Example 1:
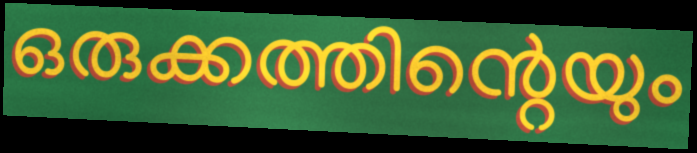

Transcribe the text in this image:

ഒരുക്കത്തിന്റെയും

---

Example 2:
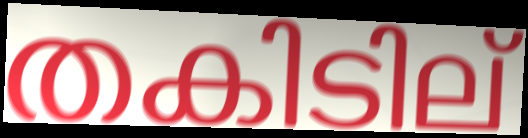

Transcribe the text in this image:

തകിടില്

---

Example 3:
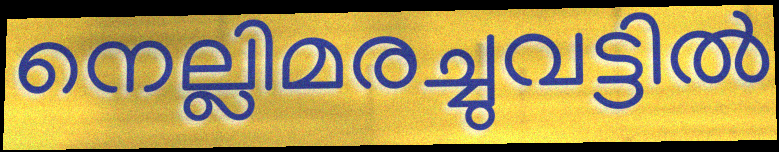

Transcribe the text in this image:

നെല്ലിമരച്ചുവട്ടിൽ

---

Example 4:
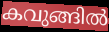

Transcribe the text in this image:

കവുങ്ങിൽ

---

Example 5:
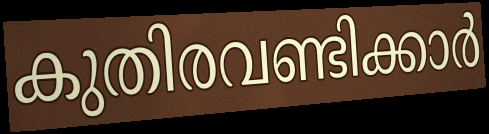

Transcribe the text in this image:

കുതിരവണ്ടിക്കാർ